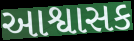
આશ્વાસક